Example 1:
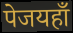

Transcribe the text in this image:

पेजयहाँ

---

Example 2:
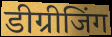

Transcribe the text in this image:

डीग्रीजिंग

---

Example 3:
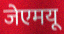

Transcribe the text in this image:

जेएमयू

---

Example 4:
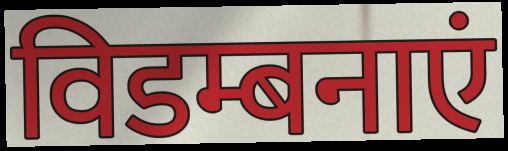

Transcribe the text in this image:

विडम्बनाएं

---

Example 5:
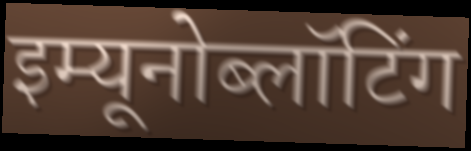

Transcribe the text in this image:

इम्यूनोब्लॉटिंग